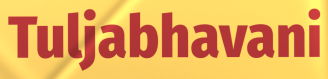
Tuljabhavani